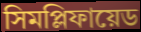
সিমপ্লিফায়েড